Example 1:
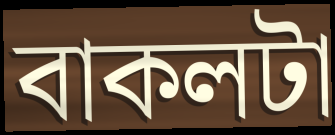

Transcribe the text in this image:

বাকলটা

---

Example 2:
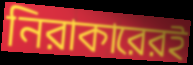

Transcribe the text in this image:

নিরাকারেরই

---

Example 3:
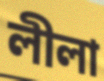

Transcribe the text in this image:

লীলা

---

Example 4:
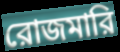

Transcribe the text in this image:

রোজমারি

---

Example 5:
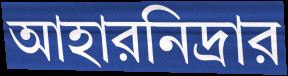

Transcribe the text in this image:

আহারনিদ্রার